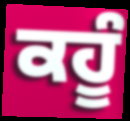
ਕਹੂੰ